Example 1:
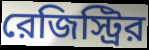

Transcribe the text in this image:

রেজিস্ট্রির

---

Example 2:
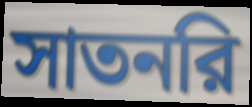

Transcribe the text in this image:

সাতনরি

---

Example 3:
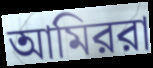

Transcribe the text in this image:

আমিররা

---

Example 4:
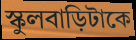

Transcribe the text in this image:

স্কুলবাড়িটাকে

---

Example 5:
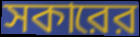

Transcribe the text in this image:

সকারের